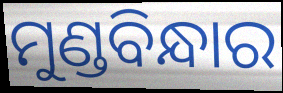
ମୁଣ୍ଡବିନ୍ଧାର